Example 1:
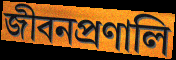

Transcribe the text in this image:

জীবনপ্রণালি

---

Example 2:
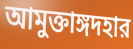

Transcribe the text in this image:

আমুক্তাঙ্গদহার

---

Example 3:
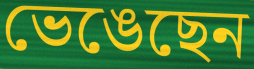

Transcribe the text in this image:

ভেঙেছেন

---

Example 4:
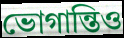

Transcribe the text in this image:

ভোগান্তিও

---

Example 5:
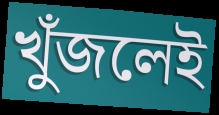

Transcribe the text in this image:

খুঁজলেই